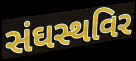
સંઘસ્થવિર